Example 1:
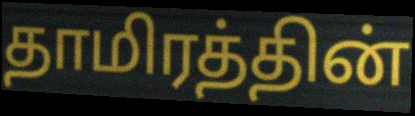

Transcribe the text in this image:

தாமிரத்தின்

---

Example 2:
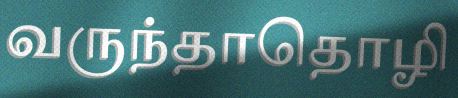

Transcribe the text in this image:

வருந்தாதொழி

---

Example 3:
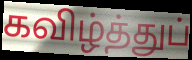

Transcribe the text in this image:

கவிழ்த்துப்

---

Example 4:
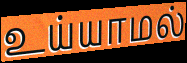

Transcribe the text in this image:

உய்யாமல்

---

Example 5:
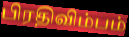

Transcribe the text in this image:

பிரதிவிம்பம்